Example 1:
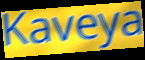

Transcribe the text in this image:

Kaveya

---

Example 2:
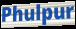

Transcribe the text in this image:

Phulpur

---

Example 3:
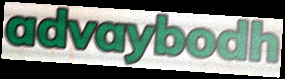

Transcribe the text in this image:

advaybodh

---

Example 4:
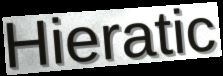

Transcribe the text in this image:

Hieratic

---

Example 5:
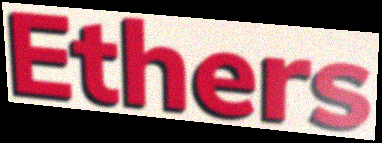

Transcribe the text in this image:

Ethers